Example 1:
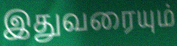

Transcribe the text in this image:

இதுவரையும்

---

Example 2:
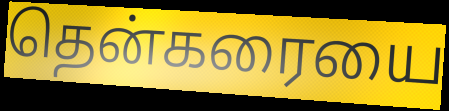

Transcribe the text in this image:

தென்கரையை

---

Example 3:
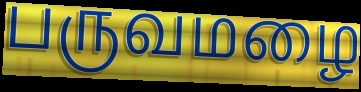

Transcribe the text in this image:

பருவமழை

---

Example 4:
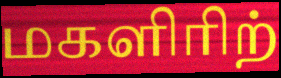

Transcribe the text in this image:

மகளிரிற்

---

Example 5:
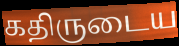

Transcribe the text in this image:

கதிருடைய